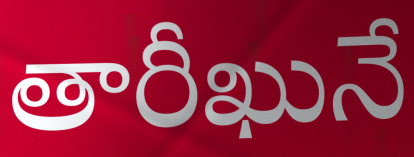
తారీఖునే